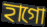
হাগো